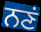
ਨਣਂ